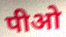
पीओ